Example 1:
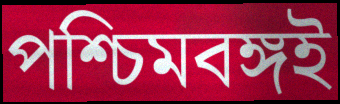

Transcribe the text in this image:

পশ্চিমবঙ্গই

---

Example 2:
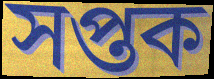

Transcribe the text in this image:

সপ্তক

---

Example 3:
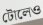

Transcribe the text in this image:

টোলেও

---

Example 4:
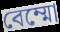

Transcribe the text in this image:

বেম্মো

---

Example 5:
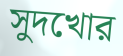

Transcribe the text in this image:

সুদখোর